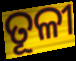
ତୂଳୀ